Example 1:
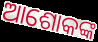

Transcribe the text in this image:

ଆଶୋକଙ୍କ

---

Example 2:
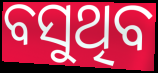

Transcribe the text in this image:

ବସୁଥିବ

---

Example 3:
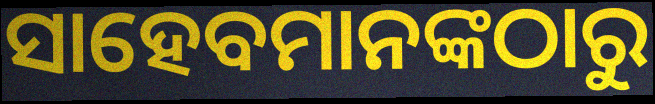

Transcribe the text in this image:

ସାହେବମାନଙ୍କଠାରୁ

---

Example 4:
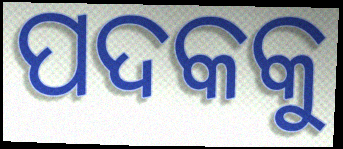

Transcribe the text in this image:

ପଦକକୁ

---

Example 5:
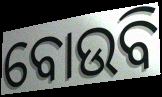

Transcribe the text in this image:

ବୋଉବି